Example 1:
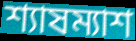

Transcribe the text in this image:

শ্যাষম্যাশ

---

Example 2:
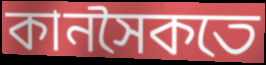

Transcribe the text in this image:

কানসৈকতে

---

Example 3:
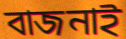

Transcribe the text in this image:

বাজনাই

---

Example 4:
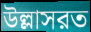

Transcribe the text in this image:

উল্লাসরত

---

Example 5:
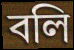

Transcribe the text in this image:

বলি